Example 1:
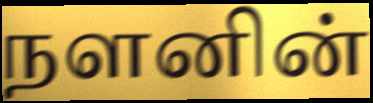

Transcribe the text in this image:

நளனின்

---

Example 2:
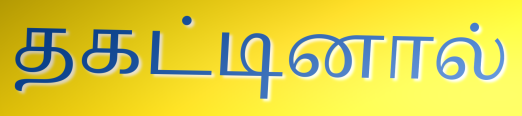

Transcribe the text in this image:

தகட்டினால்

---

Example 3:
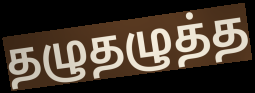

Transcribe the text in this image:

தழுதழுத்த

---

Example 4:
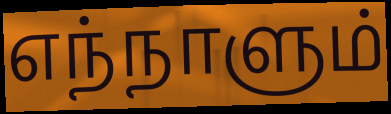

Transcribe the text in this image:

எந்நாளும்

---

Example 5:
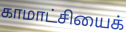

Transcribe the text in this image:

காமாட்சியைக்